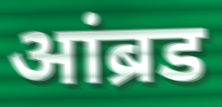
आंब्रड